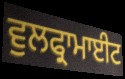
ਵੁਲਫ੍ਰਾਮਾਈਟ